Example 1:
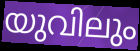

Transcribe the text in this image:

യുവിലും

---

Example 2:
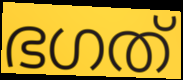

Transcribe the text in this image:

ഭഗത്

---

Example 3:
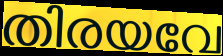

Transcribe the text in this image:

തിരയവേ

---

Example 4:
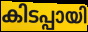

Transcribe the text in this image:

കിടപ്പായി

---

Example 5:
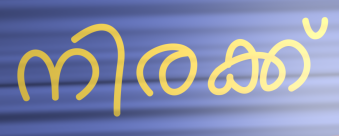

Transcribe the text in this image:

നിരക്ക്